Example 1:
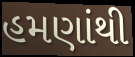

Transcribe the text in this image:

હમણાંથી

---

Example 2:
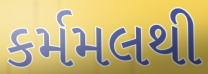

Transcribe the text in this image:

કર્મમલથી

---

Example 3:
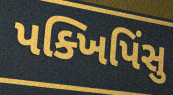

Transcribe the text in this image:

પક્ખિપિંસુ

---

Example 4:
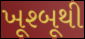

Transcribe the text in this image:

ખૂશ્બૂથી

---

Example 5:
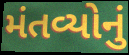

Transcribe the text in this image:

મંતવ્યોનું